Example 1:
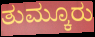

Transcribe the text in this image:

ತುಮ್ಕೂರು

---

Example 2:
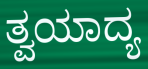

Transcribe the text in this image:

ತ್ವಯಾದ್ಯ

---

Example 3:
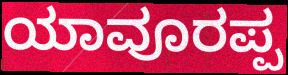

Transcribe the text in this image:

ಯಾವೂರಪ್ಪ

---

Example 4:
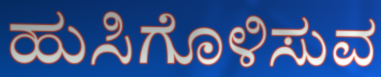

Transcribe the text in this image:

ಹುಸಿಗೊಳಿಸುವ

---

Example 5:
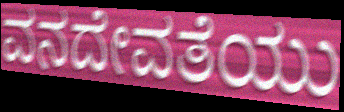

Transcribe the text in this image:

ವನದೇವತೆಯು